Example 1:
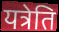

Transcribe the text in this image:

यत्रेति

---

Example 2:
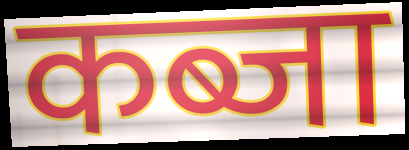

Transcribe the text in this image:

कब्जा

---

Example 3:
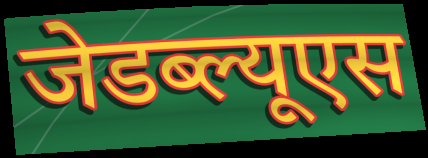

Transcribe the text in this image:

जेडब्ल्यूएस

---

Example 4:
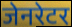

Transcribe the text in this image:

जेनरेटर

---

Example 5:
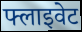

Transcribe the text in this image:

फ्लाइवेट